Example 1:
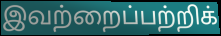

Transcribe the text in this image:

இவற்றைப்பற்றிக்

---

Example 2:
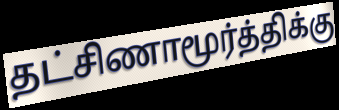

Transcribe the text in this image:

தட்சிணாமூர்த்திக்கு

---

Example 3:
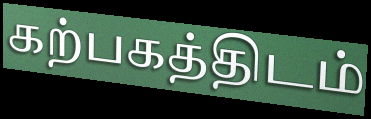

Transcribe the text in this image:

கற்பகத்திடம்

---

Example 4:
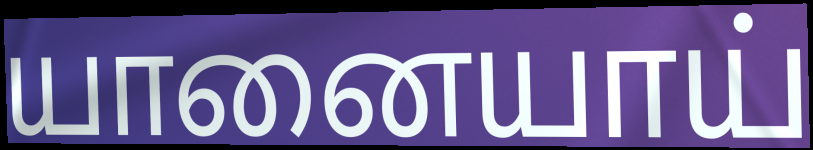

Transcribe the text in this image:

யானையாய்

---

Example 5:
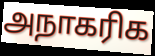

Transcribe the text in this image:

அநாகரிக